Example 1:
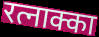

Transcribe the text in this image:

रत्नाक्का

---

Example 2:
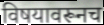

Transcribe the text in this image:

विषयावरूनच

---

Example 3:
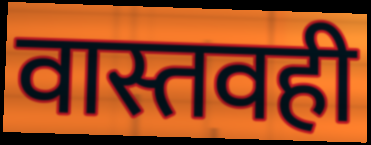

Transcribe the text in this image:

वास्तवही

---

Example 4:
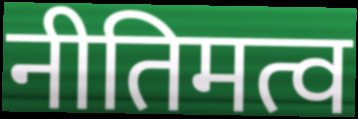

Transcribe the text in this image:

नीतिमत्व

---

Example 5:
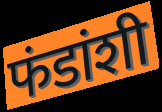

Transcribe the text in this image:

फंडांशी